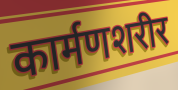
कार्मणशरीर